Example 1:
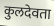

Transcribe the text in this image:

कुलदेवता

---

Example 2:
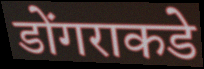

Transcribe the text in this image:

डोंगराकडे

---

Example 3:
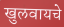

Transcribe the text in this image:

खुलवायचे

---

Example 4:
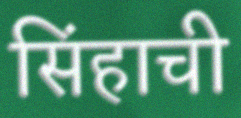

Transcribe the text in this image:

सिंहाची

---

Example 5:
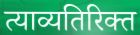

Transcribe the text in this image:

त्याव्यतिरिक्त